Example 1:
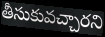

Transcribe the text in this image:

తీసుకువచ్చారని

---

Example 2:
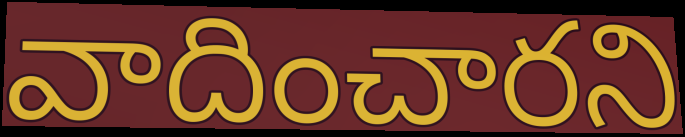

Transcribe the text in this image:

వాదించారని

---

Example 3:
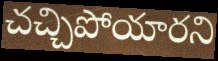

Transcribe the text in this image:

చచ్చిపోయారని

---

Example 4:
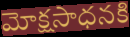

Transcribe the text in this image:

మోక్షసాధనకి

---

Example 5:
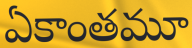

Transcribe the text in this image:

ఏకాంతమూ